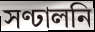
সণ্ঢালনি